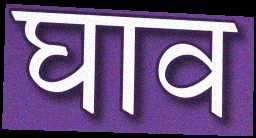
घाव